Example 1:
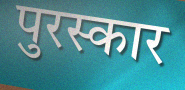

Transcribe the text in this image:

पुरस्कार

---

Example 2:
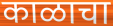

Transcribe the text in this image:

काळाचा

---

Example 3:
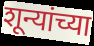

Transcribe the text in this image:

शून्यांच्या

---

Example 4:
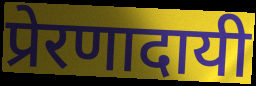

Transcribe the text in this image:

प्रेरणादायी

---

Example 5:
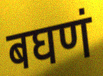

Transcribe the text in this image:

बघणं